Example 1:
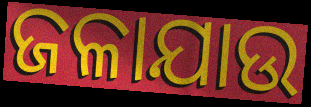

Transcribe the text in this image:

ଜଳାଯାଉ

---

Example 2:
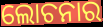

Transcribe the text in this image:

ଲୋଚନାର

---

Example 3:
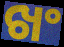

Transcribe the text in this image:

ଖଂ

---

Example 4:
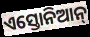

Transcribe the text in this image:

ଏସ୍ତୋନିଆନ୍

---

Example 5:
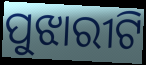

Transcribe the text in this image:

ପୁଝାରୀଟି